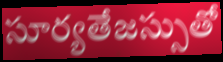
సూర్యతేజస్సుతో